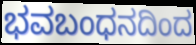
ಭವಬಂಧನದಿಂದ